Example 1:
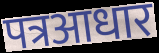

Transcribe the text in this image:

पत्रआधार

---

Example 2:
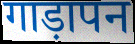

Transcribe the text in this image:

गाड़ापन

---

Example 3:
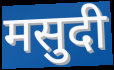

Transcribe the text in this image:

मसुदी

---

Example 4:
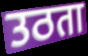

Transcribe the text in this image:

उठता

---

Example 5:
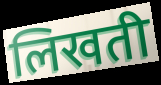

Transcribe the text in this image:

लिखती